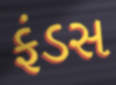
ફંડસ